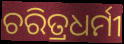
ଚରିତ୍ରଧର୍ମୀ